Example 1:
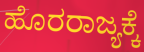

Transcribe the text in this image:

ಹೊರರಾಜ್ಯಕ್ಕೆ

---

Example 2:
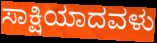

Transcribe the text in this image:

ಸಾಕ್ಷಿಯಾದವಳು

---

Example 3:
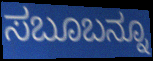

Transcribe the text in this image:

ಸಬೂಬನ್ನೂ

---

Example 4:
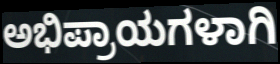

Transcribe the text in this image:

ಅಭಿಪ್ರಾಯಗಳಾಗಿ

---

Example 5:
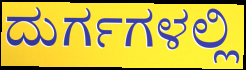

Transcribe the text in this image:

ದುರ್ಗಗಳಲ್ಲಿ